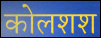
कोलशश